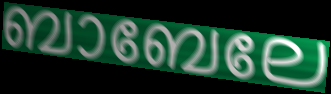
ബാബേലേ